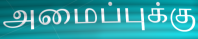
அமைப்புக்கு